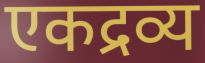
एकद्रव्य